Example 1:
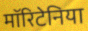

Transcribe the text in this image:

मॉरिटेनिया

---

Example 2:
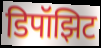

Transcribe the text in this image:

डिपॉझिट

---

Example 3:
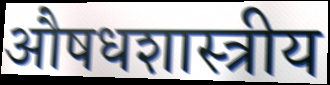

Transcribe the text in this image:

औषधशास्त्रीय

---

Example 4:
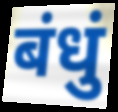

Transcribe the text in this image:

बंधुं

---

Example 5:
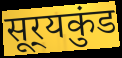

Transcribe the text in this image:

सूर्यकुंड